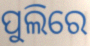
ପୁଲିରେ